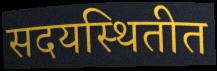
सदयस्थितीत